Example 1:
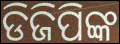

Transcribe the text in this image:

ଡିଜିପିଙ୍କ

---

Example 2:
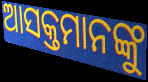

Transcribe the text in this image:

ଆସକ୍ତମାନଙ୍କୁ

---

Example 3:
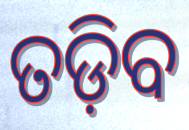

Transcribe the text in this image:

ତଡ଼ିବ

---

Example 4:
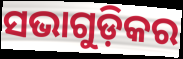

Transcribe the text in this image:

ସଭାଗୁଡ଼ିକର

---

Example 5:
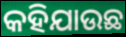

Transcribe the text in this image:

କହିଯାଉଛ